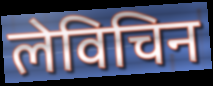
लेविचिन